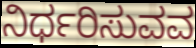
ನಿರ್ಧರಿಸುವವ